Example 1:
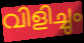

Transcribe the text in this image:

വിളിച്ചും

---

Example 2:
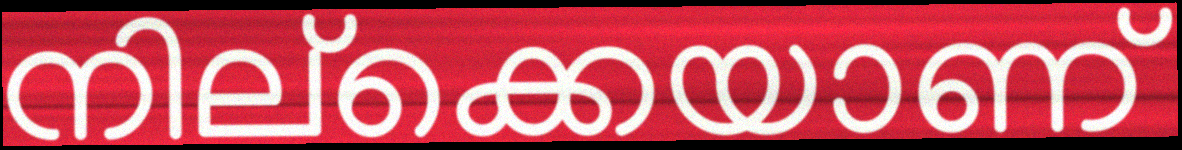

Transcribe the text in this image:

നില്ക്കെയാണ്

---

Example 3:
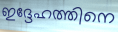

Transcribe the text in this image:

ഇദ്ദേഹത്തിനെ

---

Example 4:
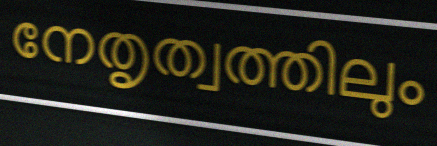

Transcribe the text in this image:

നേതൃത്വത്തിലും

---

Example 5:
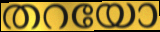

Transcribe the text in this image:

തറയോ